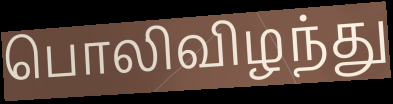
பொலிவிழந்து